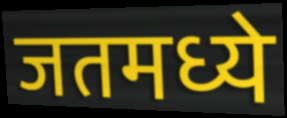
जतमध्ये